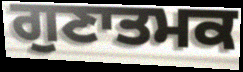
ਗੁਣਾਤਮਕ